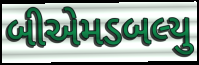
બીએમડબલ્યુ